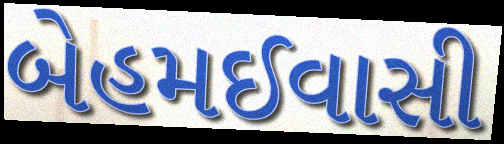
બેહમઈવાસી